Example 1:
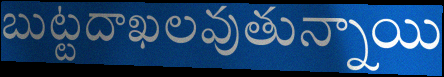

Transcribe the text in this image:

బుట్టదాఖలవుతున్నాయి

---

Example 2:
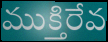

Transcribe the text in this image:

ముక్తిరేవ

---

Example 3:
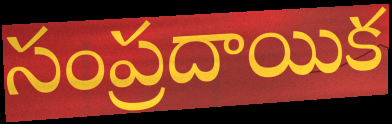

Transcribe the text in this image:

సంప్రదాయిక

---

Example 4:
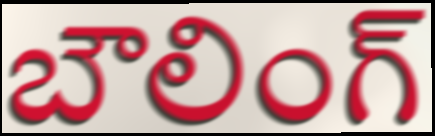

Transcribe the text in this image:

బౌలింగ్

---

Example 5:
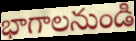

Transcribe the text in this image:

భాగాలనుండి